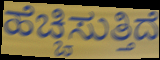
ಹೆಚ್ಚಿಸುತ್ತಿದೆ